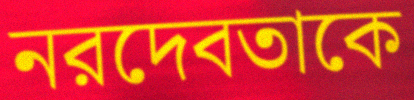
নরদেবতাকে